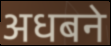
अधबने